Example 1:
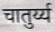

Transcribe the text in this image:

चातुर्य्य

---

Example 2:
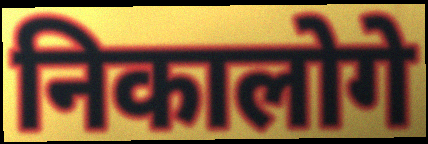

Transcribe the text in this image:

निकालोगे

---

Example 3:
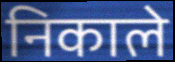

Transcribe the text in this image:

निकाले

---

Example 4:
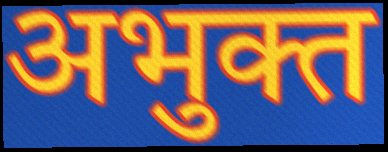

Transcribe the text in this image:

अभुक्त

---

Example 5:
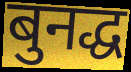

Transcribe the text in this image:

बुनद्ध